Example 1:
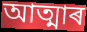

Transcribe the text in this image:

আত্মাৰ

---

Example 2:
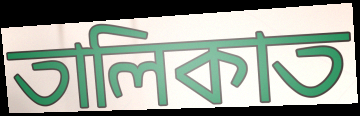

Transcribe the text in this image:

তালিকাত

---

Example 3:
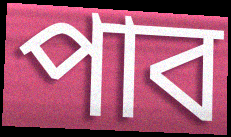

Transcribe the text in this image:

পাব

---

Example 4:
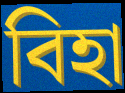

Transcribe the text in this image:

বিহা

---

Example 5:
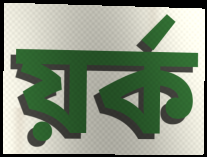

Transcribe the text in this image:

য়ৰ্ক